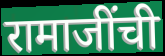
रामाजींची